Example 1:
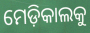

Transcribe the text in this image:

ମେଡ଼ିକାଲକୁ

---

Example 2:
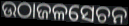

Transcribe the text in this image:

ଉଠାଜଳସେଚନ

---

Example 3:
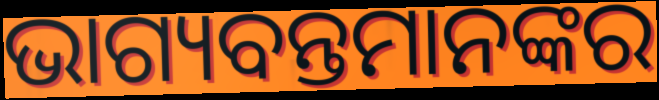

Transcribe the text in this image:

ଭାଗ୍ୟବନ୍ତମାନଙ୍କର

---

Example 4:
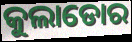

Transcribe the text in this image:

କୁଲାଡୋର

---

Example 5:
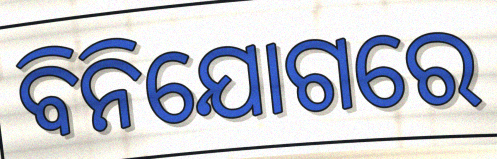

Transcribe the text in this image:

ବିନିଯୋଗରେ